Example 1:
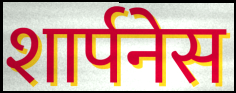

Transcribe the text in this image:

शार्पनेस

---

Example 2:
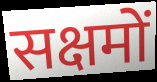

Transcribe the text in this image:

सक्षमों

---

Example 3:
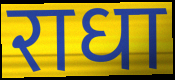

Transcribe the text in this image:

राधा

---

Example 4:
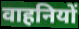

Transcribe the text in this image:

वाहनियों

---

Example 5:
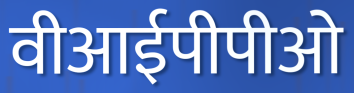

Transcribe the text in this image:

वीआईपीपीओ